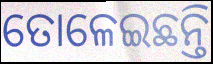
ତୋଳେଇଛନ୍ତି